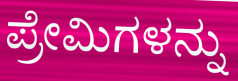
ಪ್ರೇಮಿಗಳನ್ನು